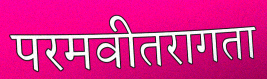
परमवीतरागता